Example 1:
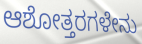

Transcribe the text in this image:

ಆಶೋತ್ತರಗಳೇನು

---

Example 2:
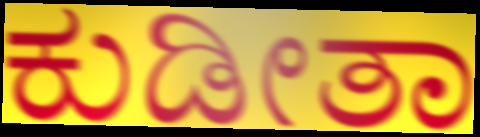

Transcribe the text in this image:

ಕುಡೀತಾ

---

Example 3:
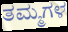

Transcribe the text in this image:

ತಮ್ಮಗಳ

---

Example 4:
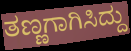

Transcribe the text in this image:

ತಣ್ಣಗಾಗಿಸಿದ್ದು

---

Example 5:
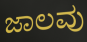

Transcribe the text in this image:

ಜಾಲವು